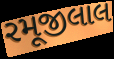
રમૂજીલાલ